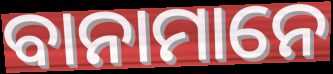
ବାନାମାନେ